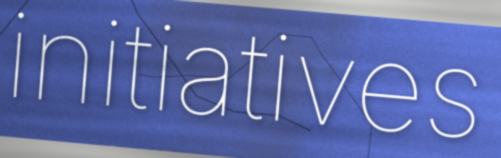
initiatives